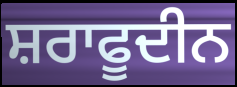
ਸ਼ਰਾਫੂਦੀਨ